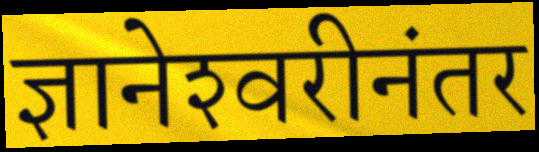
ज्ञानेश्वरीनंतर